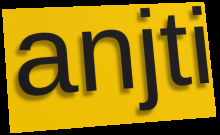
anjti